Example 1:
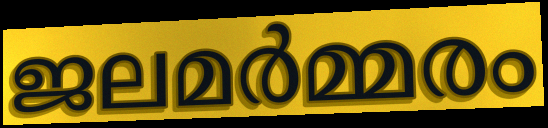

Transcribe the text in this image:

ജലമർമ്മരം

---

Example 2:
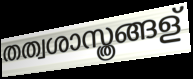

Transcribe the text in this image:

തത്വശാസ്ത്രങ്ങള്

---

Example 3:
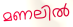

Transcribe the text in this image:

മണലിൽ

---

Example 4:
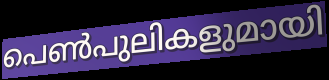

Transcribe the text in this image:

പെൺപുലികളുമായി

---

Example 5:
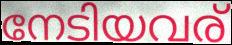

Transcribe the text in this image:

നേടിയവര്